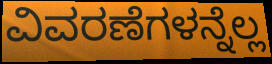
ವಿವರಣೆಗಳನ್ನೆಲ್ಲ